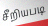
சீறியபடி